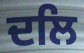
ਦਲਿ